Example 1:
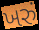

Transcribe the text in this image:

ખરું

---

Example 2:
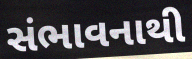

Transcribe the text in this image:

સંભાવનાથી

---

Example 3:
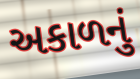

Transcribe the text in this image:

અકાળનું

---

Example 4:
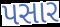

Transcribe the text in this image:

પસાર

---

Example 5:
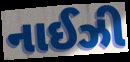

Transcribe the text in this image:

નાઈઝી